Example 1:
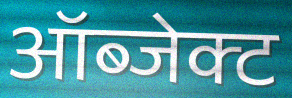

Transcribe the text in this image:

ऑब्‍जेक्‍ट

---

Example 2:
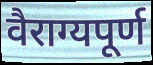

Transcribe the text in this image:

वैराग्यपूर्ण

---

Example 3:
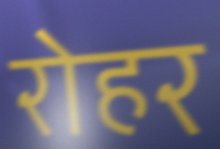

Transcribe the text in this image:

रोहर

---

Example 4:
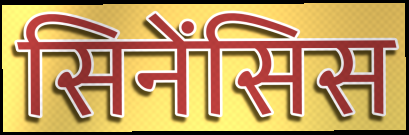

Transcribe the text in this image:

सिनेंसिस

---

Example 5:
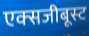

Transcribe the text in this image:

एक्सजीबूस्ट